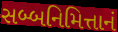
સબ્બનિમિત્તાનં